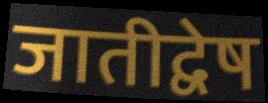
जातीद्वेष